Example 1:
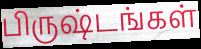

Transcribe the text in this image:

பிருஷ்டங்கள்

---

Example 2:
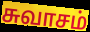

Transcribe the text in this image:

சுவாசம்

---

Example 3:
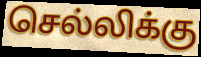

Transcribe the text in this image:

செல்லிக்கு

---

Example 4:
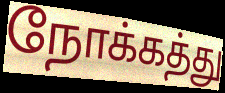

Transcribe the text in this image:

நோக்கத்து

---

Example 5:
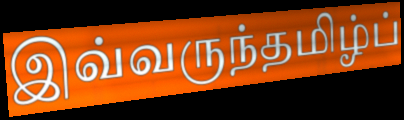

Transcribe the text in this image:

இவ்வருந்தமிழ்ப்